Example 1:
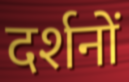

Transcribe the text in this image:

दर्शनों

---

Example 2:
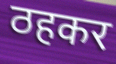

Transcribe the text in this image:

ठहकर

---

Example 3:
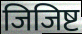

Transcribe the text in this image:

जिजिष्ट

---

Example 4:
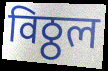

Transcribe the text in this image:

विठ्ठल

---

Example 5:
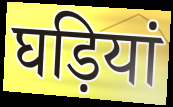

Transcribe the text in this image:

घड़ियां